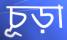
চূড়া